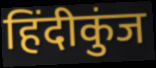
हिंदीकुंज